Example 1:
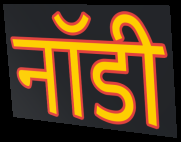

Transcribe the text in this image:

नॉडी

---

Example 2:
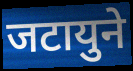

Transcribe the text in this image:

जटायुने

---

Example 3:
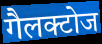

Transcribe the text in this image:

गैलक्टोज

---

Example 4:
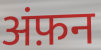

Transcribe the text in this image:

अंफ़न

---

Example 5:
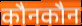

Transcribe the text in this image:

कौनकौन